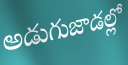
అడుగుజాడల్లో